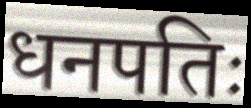
धनपतिः